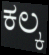
ಕಲ್ಕ